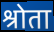
श्रोता